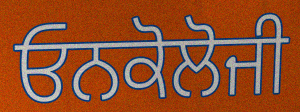
ਓਨਕੋਲੋਜੀ